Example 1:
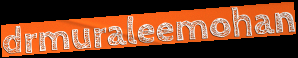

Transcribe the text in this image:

drmuraleemohan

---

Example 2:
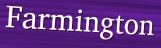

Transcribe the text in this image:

Farmington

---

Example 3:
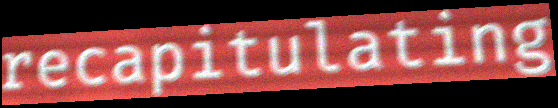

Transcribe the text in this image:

recapitulating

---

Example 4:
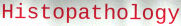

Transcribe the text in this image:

Histopathology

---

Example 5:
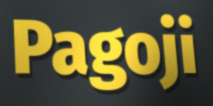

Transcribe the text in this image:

Pagoji